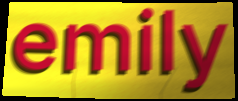
emily